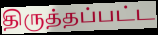
திருத்தப்பட்ட